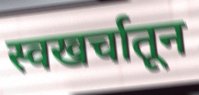
स्वखर्चातून